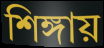
শিঙ্গায়